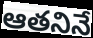
ఆతనినే